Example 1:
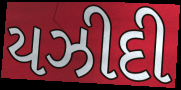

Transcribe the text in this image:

યઝીદી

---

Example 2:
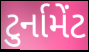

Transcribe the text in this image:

ટુર્નામેંટ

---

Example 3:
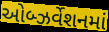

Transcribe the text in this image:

ઓબ્ઝર્વેશનમાં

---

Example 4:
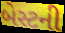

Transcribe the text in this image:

બેસ્ટની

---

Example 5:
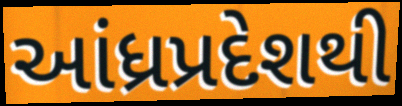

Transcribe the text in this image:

આંધ્રપ્રદેશથી